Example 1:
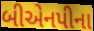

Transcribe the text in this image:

બીએનપીના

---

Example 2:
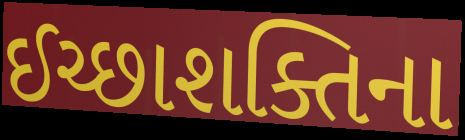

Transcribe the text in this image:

ઈચ્છાશક્તિના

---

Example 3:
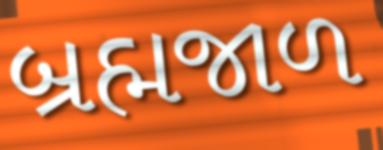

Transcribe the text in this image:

બ્રહ્મજાળ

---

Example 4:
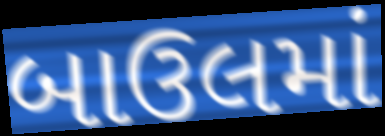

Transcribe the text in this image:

બાઉલમાં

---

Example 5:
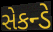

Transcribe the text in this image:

સેકન્ડે